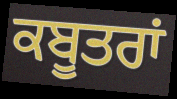
ਕਬੂਤਰਾਂ